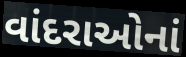
વાંદરાઓનાં